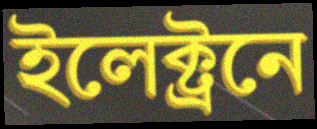
ইলেক্ট্ৰনে